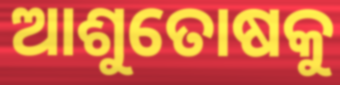
ଆଶୁତୋଷକୁ